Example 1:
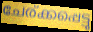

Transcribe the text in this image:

ചേര്ക്കപ്പെട്ടു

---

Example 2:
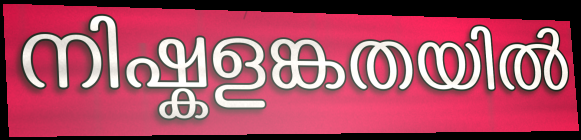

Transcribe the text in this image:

നിഷ്കളങ്കതയിൽ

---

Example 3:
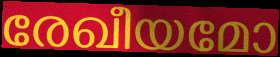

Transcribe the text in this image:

രേഖീയമോ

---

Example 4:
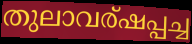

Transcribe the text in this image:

തുലാവര്ഷപ്പച്ച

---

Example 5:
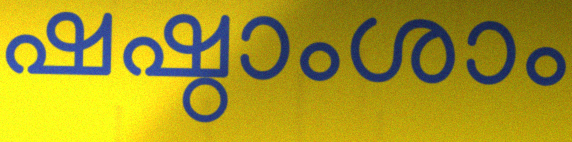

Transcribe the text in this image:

ഷഷ്ഠാംശാം